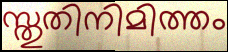
സ്തുതിനിമിത്തം